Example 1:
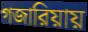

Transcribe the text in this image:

গজারিয়ায়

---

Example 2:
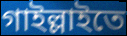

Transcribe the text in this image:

গাইল্লাইতে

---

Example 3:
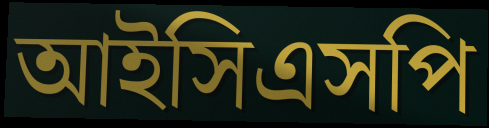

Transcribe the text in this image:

আইসিএসপি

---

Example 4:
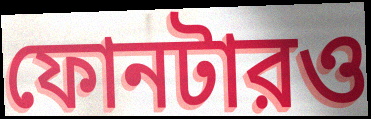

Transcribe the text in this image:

ফোনটারও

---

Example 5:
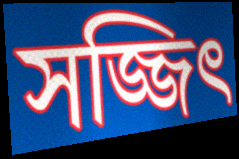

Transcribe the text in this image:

সজ্জিৎ